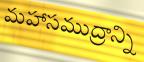
మహాసముద్రాన్ని